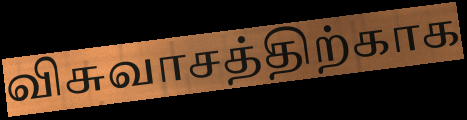
விசுவாசத்திற்காக